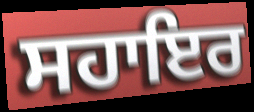
ਸਹਾਇਰ